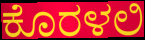
ಕೊರಳಲಿ